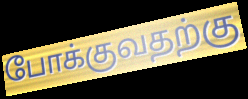
போக்குவதற்கு